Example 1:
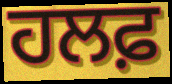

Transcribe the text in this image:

ਹਲਫ਼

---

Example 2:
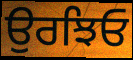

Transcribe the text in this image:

ਉਰਝਿਓ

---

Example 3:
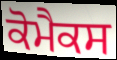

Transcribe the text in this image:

ਕੋਮੈਕਸ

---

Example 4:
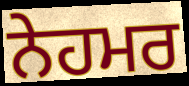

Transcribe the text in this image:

ਨੇਹਮਰ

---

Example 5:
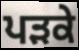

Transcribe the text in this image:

ਪੜਕੇ